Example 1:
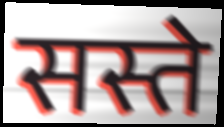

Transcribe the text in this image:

सस्ते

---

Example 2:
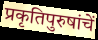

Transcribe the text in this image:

प्रकृतिपुरुषांचें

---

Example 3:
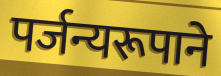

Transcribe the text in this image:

पर्जन्यरूपाने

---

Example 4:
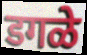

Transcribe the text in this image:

डगळे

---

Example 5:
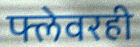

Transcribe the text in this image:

फ्लेवरही